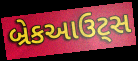
બ્રેકઆઉટ્સ